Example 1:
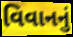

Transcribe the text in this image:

વિવાનનું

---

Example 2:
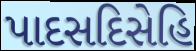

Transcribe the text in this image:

પાદસદિસેહિ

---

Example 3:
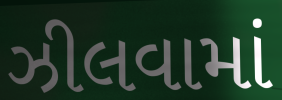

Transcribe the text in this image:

ઝીલવામાં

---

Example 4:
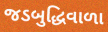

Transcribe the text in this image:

જડબુદ્ધિવાળા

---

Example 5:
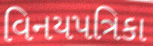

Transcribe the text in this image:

વિનયપત્રિકા